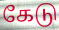
கேடு